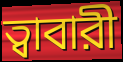
ত্বাবারী